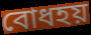
বোধহয়